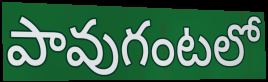
పావుగంటలో